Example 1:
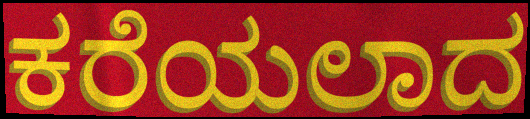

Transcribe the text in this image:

ಕರೆಯಲಾದ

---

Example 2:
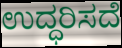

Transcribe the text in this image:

ಉದ್ಧರಿಸದೆ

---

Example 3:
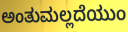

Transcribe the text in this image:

ಅಂತುಮಲ್ಲದೆಯುಂ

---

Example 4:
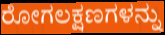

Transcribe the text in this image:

ರೋಗಲಕ್ಷಣಗಳನ್ನು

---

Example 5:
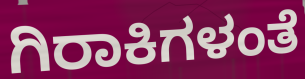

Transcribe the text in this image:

ಗಿರಾಕಿಗಳಂತೆ